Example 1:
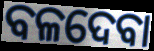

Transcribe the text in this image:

ବଳଦେବା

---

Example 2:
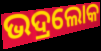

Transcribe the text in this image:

ଭଦ୍ରଲୋକ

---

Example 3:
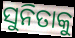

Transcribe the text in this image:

ସୁନିତାକୁ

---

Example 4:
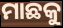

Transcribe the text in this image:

ମାଛକୁ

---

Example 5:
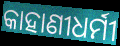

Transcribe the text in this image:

କାହାଣୀଧର୍ମୀ